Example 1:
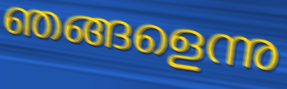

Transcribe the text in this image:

ഞങ്ങളെന്നു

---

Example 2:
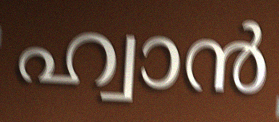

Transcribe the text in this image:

ഹ്വാൻ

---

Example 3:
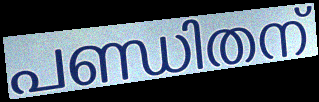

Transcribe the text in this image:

പണ്ഡിതന്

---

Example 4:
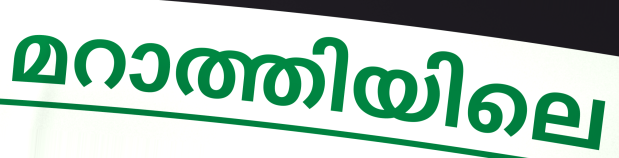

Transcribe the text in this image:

മറാത്തിയിലെ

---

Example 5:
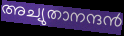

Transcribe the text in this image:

അച്യുതാനന്ദൻ